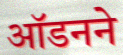
ऑडनने